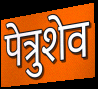
पेत्रुशेव